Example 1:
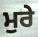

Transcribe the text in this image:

ਮੁਰੇ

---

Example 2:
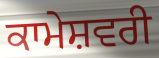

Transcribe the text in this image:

ਕਾਮੇਸ਼ਵਰੀ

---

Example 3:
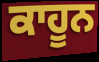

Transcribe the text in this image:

ਕਾਹੂਨ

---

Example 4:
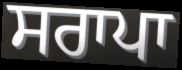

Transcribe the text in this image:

ਸਰਾਪਾ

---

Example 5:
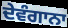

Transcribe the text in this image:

ਦੇਵੰਗਾਨਾ